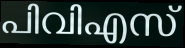
പിവിഎസ്